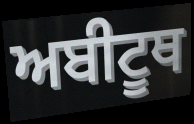
ਅਬੀਟੂਥ